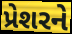
પ્રેશરને